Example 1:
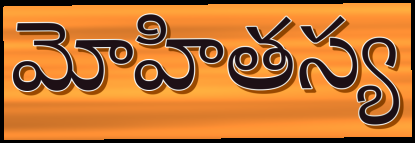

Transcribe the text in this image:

మోహితస్య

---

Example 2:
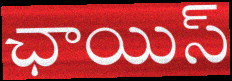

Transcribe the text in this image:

ఛాయిస్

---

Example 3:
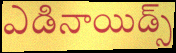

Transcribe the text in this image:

ఎడినాయిడ్స్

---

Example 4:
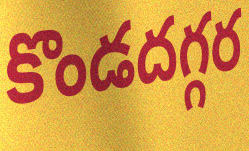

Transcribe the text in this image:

కొండదగ్గర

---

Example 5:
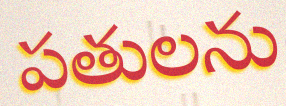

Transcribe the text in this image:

పతులను